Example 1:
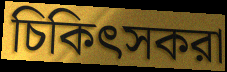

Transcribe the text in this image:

চিকিৎসকরা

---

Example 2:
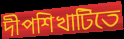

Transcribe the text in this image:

দীপশিখাটিতে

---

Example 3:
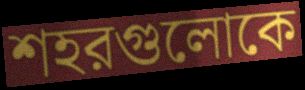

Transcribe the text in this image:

শহরগুলোকে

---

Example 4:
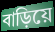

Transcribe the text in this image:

বাড়িয়ে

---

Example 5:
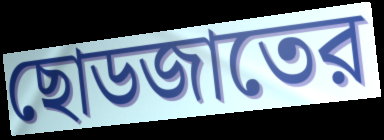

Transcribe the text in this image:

ছোডজাতের